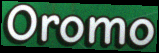
Oromo